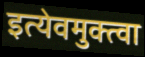
इत्येवमुक्त्वा